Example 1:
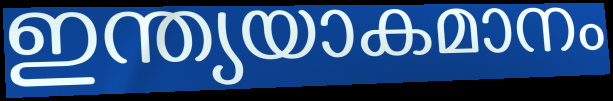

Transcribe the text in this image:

ഇന്ത്യയാകമാനം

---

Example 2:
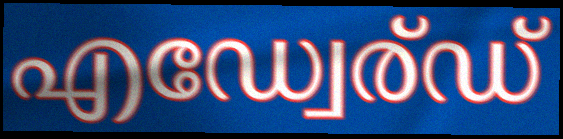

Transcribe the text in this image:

എഡ്വേര്ഡ്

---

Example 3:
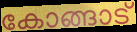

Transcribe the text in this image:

കോങ്ങാട്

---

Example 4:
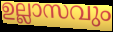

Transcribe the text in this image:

ഉല്ലാസവും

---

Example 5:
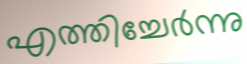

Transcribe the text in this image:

എത്തിച്ചേർന്നു